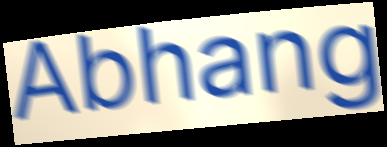
Abhang